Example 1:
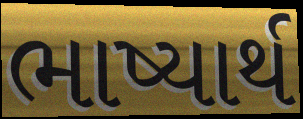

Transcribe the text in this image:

ભાષ્યાર્થ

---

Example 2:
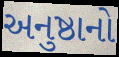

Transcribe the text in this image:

અનુષ્ઠાનો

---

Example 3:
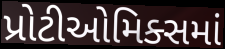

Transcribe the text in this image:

પ્રોટીઓમિક્સમાં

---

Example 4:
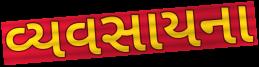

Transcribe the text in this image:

વ્યવસાયના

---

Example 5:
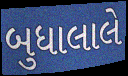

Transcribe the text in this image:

બુધાલાલે